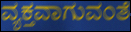
ವ್ಯಕ್ತವಾಗುವಂತೆ